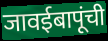
जावईबापूंची